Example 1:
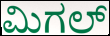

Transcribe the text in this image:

ಮಿಗಲ್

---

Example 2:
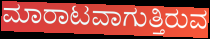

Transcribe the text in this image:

ಮಾರಾಟವಾಗುತ್ತಿರುವ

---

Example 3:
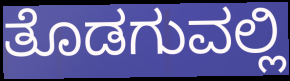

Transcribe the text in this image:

ತೊಡಗುವಲ್ಲಿ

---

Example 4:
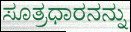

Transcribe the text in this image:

ಸೂತ್ರಧಾರನನ್ನು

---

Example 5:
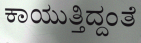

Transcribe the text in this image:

ಕಾಯುತ್ತಿದ್ದಂತೆ